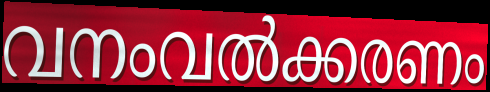
വനംവൽക്കരണം